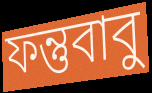
ফন্তুবাবু